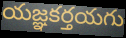
యజ్ఞకర్తయగు